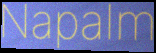
Napalm